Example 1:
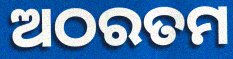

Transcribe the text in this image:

ଅଠରତମ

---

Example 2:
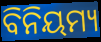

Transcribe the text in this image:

ବିନିୟମ୍ୟ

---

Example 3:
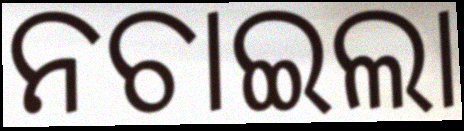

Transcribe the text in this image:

ନଚାଇଲା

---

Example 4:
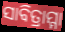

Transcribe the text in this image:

ସାବିତ୍ରାମ୍ମା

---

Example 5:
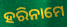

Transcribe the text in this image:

ହରିନାମେ